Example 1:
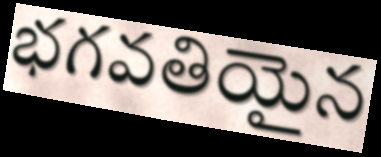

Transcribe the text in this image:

భగవతియైన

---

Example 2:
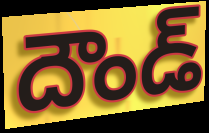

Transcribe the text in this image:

దౌండ్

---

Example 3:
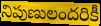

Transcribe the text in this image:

నిపుణులందరికీ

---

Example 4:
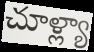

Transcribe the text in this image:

చూళ్ల్యా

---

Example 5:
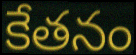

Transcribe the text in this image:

కేతనం